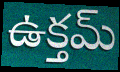
ఉక్తమ్